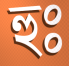
হুঃ